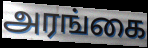
அரங்கை